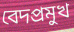
বেদপ্রমুখ